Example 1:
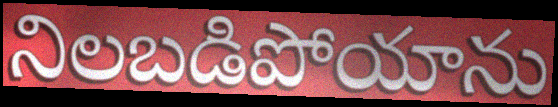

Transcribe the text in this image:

నిలబడిపోయాను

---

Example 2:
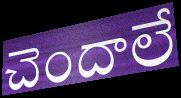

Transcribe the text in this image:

చెందాలే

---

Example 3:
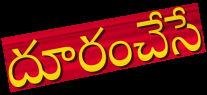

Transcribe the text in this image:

దూరంచేసే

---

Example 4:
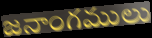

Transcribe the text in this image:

జనాంగములు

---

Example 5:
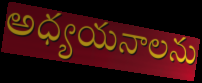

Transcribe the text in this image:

అధ్యయనాలను